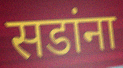
सडांना